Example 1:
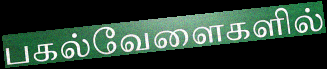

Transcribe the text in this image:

பகல்வேளைகளில்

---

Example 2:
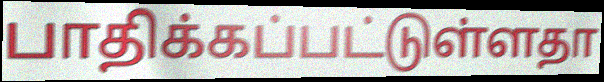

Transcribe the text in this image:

பாதிக்கப்பட்டுள்ளதா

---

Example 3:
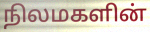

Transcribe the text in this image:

நிலமகளின்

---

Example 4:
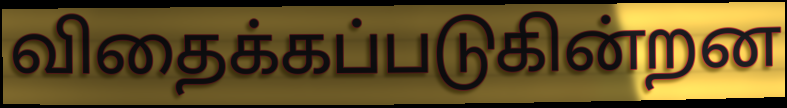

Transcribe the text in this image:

விதைக்கப்படுகின்றன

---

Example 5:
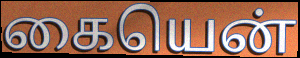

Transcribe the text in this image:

கையென்